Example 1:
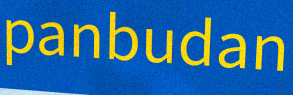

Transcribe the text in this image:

panbudan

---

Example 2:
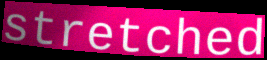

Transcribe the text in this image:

stretched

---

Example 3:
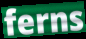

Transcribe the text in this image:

ferns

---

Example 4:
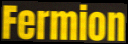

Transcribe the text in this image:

Fermion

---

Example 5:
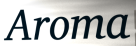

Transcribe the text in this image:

Aroma